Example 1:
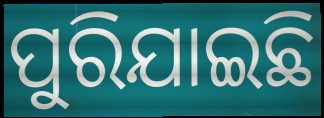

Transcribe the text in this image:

ପୁରିଯାଇଛି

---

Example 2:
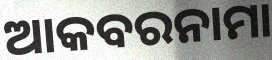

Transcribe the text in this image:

ଆକବରନାମା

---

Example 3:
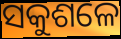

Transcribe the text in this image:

ସକୁଶଳେ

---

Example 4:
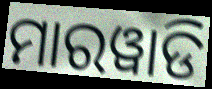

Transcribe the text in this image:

ମାରୱାଡି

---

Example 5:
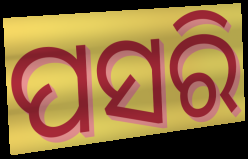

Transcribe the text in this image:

ପସରି